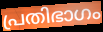
പ്രതിഭാഗം